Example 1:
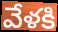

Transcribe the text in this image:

వేళకి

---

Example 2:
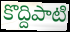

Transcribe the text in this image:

కొద్దిపాటి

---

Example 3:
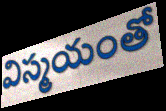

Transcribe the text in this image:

విస్మయంతో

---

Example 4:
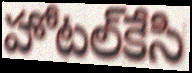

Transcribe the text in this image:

హోటల్‌కేసి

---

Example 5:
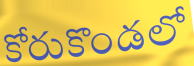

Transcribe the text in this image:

కోరుకొండలో